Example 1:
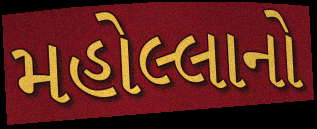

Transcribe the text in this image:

મહોલ્લાનો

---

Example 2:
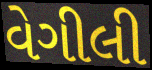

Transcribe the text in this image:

વેગીલી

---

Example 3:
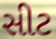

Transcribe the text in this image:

સીટ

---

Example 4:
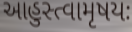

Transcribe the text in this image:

આહુસ્ત્વામૃષયઃ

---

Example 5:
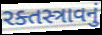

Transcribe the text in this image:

રક્તસ્ત્રાવનું